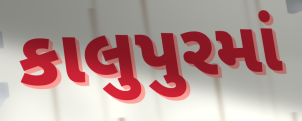
કાલુપુરમાં